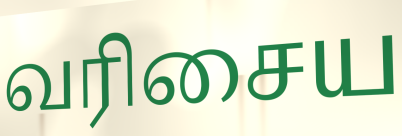
வரிசைய